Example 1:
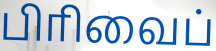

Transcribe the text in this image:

பிரிவைப்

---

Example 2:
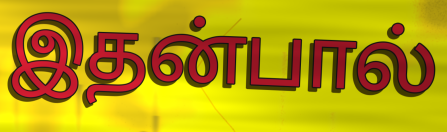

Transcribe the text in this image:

இதன்பால்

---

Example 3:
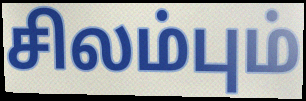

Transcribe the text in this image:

சிலம்பும்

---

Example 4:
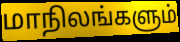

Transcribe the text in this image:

மாநிலங்களும்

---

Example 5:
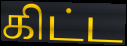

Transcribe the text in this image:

கிட்ட